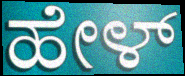
ಹೇಳ್